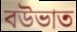
বউভাত